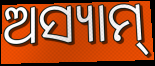
ଅସ୍ୟାମ୍